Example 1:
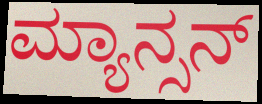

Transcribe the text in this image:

ಮ್ಯಾನ್ಸನ್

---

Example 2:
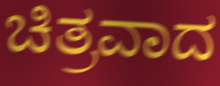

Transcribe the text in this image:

ಚಿತ್ರವಾದ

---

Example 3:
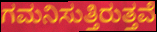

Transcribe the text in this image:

ಗಮನಿಸುತ್ತಿರುತ್ತವೆ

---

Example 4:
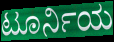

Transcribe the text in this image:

ಟೂರ್ನಿಯ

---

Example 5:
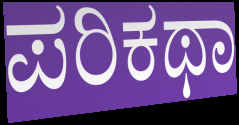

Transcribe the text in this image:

ಪರಿಕಥಾ